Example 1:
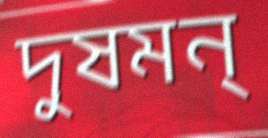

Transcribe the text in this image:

দুষমন্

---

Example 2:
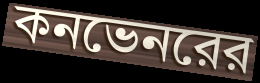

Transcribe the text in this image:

কনভেনরের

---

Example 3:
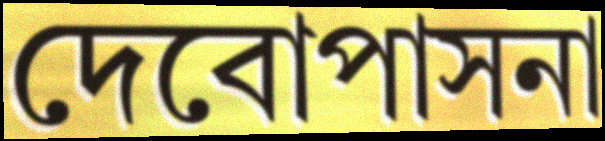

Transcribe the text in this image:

দেবোপাসনা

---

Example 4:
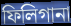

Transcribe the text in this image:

ফিলিগানা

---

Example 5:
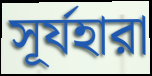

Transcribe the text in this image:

সূর্যহারা